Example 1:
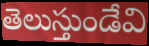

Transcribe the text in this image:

తెలుస్తుండేవి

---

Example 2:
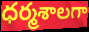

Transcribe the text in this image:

ధర్మశాలగా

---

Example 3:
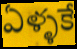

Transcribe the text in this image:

ఏళ్ళకే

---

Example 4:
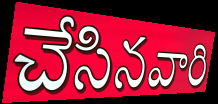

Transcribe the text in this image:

చేసినవారి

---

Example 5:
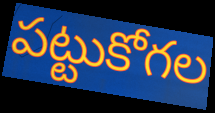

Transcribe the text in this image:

పట్టుకోగల